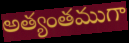
అత్యంతముగా